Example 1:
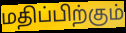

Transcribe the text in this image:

மதிப்பிற்கும்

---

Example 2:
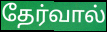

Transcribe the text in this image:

தேர்வால்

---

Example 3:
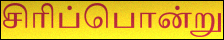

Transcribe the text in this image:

சிரிப்பொன்று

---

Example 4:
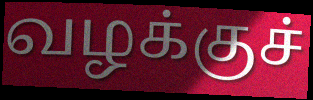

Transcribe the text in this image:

வழக்குச்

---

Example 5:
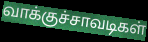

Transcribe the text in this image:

வாக்குச்சாவடிகள்